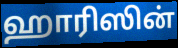
ஹாரிஸின்